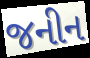
જનીન